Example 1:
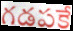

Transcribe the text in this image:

గడపకే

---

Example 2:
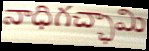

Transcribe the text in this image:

నాధిగచ్ఛామి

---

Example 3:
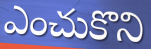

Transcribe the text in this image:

ఎంచుకొని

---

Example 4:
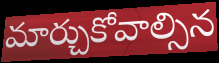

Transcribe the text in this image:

మార్చుకోవాల్సిన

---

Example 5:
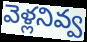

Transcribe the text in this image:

వెళ్లనివ్వ